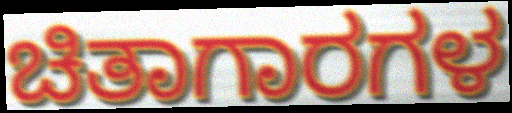
ಚಿತಾಗಾರಗಳ